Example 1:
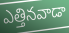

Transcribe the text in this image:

ఎత్తినవాడా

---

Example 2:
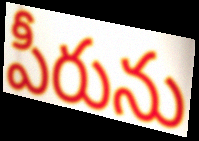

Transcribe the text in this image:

పీరును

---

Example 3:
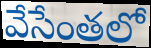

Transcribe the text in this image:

వేసేంతలో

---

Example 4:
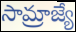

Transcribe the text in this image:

సామ్రాజ్యే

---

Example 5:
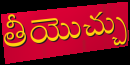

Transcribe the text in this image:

తీయొచ్చు